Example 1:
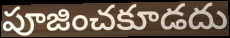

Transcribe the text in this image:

పూజించకూడదు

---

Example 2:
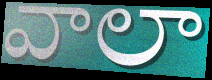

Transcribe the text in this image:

వాలా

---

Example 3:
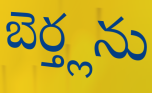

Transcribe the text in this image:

బెర్త్లను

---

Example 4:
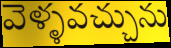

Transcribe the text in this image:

వెళ్ళవచ్చును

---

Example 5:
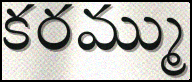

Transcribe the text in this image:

కరమ్ము